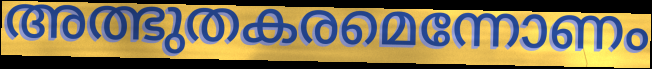
അത്ഭുതകരമെന്നോണം